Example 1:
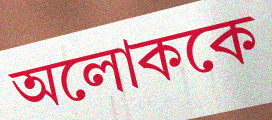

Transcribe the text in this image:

অলোককে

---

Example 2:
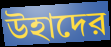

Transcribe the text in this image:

উহাদের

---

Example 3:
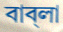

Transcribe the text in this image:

বাব্‌লা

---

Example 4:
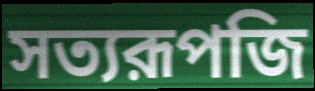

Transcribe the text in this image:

সত্যরূপজি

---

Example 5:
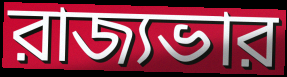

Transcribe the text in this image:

রাজ্যভার